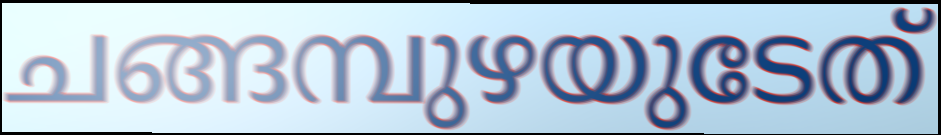
ചങ്ങമ്പുഴയുടേത്